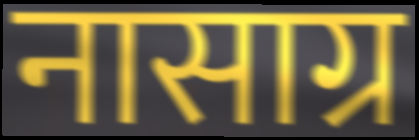
नासाग्र